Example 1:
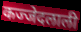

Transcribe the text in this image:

कज्जेदलाली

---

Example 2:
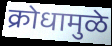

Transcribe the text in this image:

क्रोधामुळे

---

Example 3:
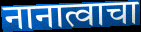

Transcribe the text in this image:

नानात्वाचा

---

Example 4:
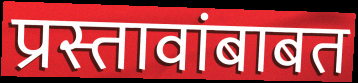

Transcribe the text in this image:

प्रस्तावांबाबत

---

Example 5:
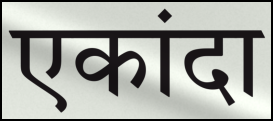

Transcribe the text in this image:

एकांदा